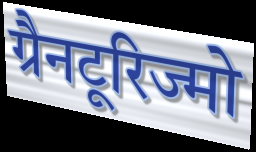
ग्रैनटूरिज्मो